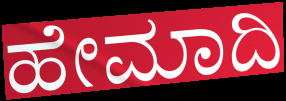
ಹೇಮಾದಿ